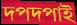
দপদপাই